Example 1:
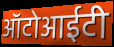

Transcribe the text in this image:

ऑटोआईटी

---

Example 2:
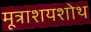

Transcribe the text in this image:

मूत्राशयशोथ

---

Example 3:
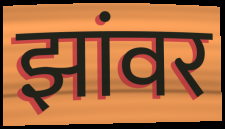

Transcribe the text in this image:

झांवर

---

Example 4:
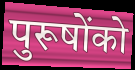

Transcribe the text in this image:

पुरूषोंको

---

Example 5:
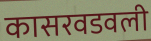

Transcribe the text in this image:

कासरवडवली